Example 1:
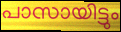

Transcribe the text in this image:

പാസായിട്ടും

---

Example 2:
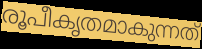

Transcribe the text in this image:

രൂപീകൃതമാകുന്നത്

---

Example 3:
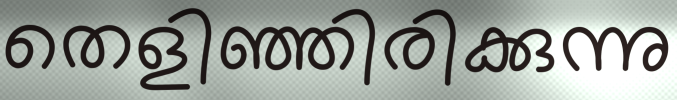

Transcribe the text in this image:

തെളിഞ്ഞിരിക്കുന്നു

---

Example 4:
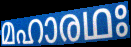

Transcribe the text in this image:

മഹാരഥഃ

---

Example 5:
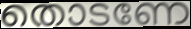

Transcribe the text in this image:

തൊടണേ